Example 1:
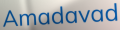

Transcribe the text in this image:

Amadavad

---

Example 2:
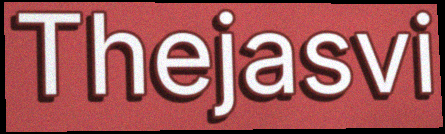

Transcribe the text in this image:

Thejasvi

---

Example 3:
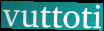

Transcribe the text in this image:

vuttoti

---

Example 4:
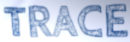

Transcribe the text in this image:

TRACE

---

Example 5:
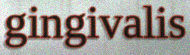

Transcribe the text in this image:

gingivalis